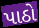
પાઠો